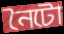
নৈটো